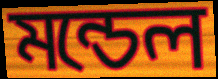
মন্ডেল